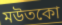
মউতকো